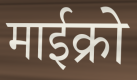
माईक्रो